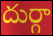
దుర్గా